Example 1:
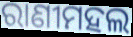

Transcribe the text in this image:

ରାଣୀମହଲ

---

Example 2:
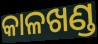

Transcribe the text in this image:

କାଳଖଣ୍ଡ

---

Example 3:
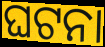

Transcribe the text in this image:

ଘଟନା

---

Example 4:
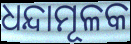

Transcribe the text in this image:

ଧନ୍ଦାମୂଳକ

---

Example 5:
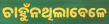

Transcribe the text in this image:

ଚାହୁଁନଥିଲାବେଳେ